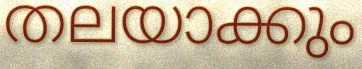
തലയാക്കും